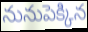
నునుపెక్కిన